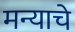
मन्याचे